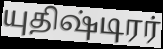
யுதிஷ்டிரர்